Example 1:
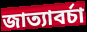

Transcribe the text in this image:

জাত্যাবৰ্চা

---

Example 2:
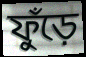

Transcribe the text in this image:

ফুঁড়ে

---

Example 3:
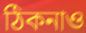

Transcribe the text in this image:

ঠিকনাও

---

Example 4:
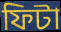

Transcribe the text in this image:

ফিটা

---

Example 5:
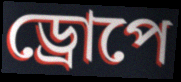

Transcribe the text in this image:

ড্ৰোপে